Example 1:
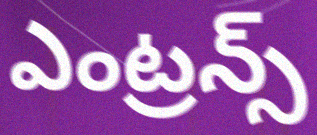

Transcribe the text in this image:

ఎంట్రన్స్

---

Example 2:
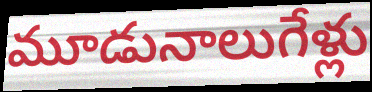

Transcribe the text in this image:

మూడునాలుగేళ్లు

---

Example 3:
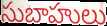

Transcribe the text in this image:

సుబాహులు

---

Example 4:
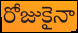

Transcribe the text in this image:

రోజుకైనా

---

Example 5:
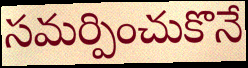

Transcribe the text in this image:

సమర్పించుకొనే